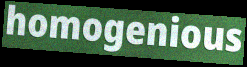
homogenious